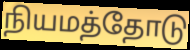
நியமத்தோடு